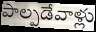
పాల్పడేవాళ్లు